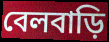
বেলবাড়ি